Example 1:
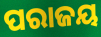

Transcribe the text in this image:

ପରାଜୟ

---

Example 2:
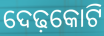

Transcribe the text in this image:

ଦେଢ଼କୋଟି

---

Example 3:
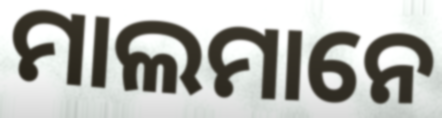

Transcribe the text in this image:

ମାଲମାନେ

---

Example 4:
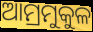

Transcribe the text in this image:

ଆମ୍ରମୁକୁଳ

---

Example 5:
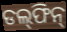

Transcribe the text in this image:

ଡଲ୍‍ଫିନ୍